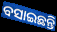
ବସାଇଛନ୍ତି